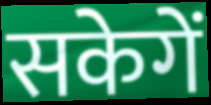
सकेगें